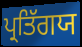
ਪ੍ਰਤਿੱਗਯ